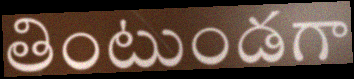
తింటుండగా